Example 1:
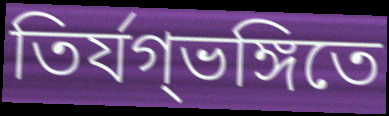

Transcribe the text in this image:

তির্যগ্ভঙ্গিতে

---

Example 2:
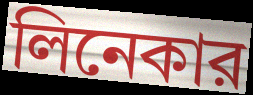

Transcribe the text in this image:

লিনেকার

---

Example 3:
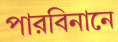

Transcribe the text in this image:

পারবিনানে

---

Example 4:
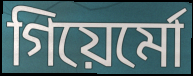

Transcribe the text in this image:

গিয়ের্মো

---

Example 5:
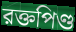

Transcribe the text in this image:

রক্তপিণ্ড